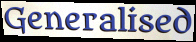
Generalised